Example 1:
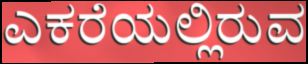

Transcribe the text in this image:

ಎಕರೆಯಲ್ಲಿರುವ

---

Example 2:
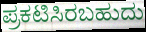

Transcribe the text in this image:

ಪ್ರಕಟಿಸಿರಬಹುದು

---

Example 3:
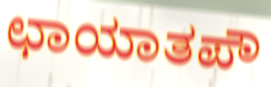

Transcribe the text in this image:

ಛಾಯಾತಪೌ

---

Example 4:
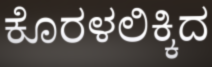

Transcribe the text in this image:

ಕೊರಳಲಿಕ್ಕಿದ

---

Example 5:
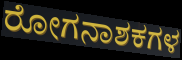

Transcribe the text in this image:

ರೋಗನಾಶಕಗಳ